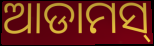
ଆଡାମସ୍